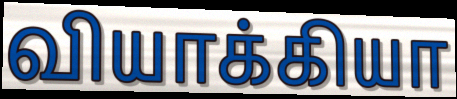
வியாக்கியா